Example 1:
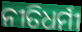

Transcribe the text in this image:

ନୀତିଧର୍ମୀ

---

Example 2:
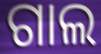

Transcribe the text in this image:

ଗାଲ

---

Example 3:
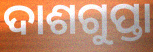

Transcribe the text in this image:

ଦାଶଗୁପ୍ତା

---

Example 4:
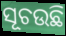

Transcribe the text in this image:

ସୂଚଉଛି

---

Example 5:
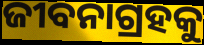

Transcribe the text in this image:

ଜୀବନାଗ୍ରହକୁ